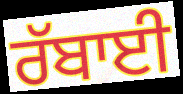
ਰੱਬਾਈ